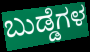
ಬುಡ್ಡೆಗಳ